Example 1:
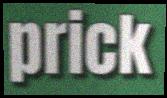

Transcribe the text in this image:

prick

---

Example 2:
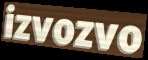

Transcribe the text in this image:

izvozvo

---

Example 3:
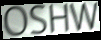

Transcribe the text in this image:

OSHW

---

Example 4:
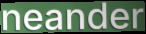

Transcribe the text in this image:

neander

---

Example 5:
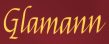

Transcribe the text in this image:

Glamann